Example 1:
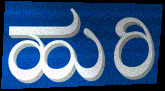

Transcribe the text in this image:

ಹುರಿ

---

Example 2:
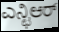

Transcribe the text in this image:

ಎನ್ಟಿಆರ್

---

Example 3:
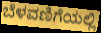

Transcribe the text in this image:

ಬೆಳವಣಿಗೆಯಲ್ಲಿ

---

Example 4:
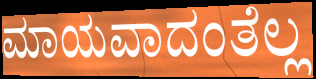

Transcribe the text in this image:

ಮಾಯವಾದಂತೆಲ್ಲ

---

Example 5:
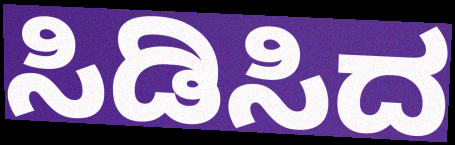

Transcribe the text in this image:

ಸಿಡಿಸಿದ